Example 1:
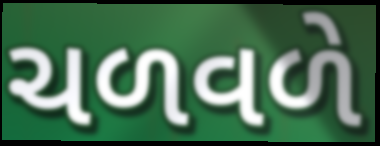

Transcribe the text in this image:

ચળવળે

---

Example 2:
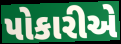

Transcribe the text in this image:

પોકારીએ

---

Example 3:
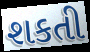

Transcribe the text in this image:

શકતી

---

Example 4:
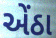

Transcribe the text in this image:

એંઠા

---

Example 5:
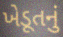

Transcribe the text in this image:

ખેડૂતનું